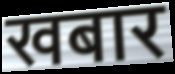
खबार